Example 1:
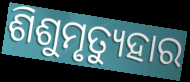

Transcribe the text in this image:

ଶିଶୁମୃତ୍ୟୁହାର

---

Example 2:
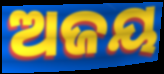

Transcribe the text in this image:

ଅଜୟ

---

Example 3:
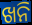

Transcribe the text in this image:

ଖନି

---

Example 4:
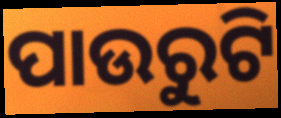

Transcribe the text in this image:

ପାଉରୁଟି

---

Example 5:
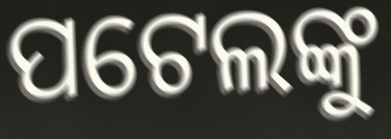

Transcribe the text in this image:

ପଟେଲଙ୍କୁ